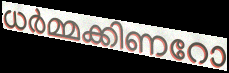
ധർമ്മക്കിണറോ